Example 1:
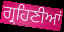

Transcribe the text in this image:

ਗ੍ਰਹਿਣੀਆਂ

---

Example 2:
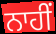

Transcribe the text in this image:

ਨਾਹੀਂ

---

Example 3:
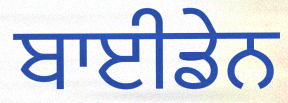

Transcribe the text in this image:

ਬਾਈਡੇਨ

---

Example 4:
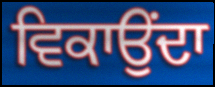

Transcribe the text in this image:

ਵਿਕਾਉੰਦਾ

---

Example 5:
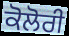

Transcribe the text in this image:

ਕੋਲੋਰੀ